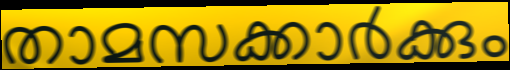
താമസക്കാർക്കും